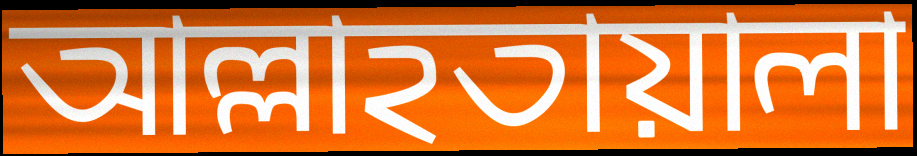
আল্লাহতায়ালা